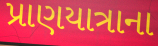
પ્રાણયાત્રાના